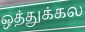
ஒத்துக்கல